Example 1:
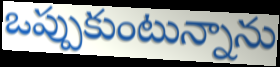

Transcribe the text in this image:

ఒప్పుకుంటున్నాను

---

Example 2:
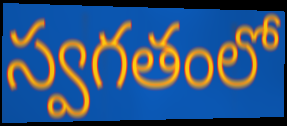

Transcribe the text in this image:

స్వగతంలో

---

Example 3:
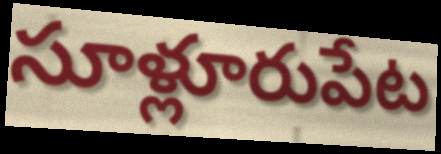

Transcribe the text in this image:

సూళ్లూరుపేట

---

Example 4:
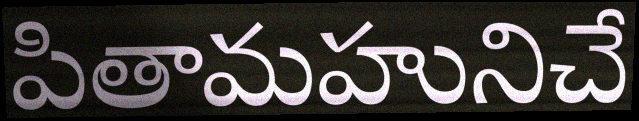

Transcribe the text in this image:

పితామహునిచే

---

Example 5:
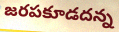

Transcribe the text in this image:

జరపకూడదన్న